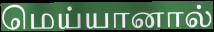
மெய்யானால்